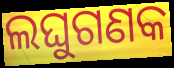
ଲଘୁଗଣକ